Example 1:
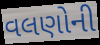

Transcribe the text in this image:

વલણોની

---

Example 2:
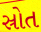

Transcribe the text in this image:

સ્રોત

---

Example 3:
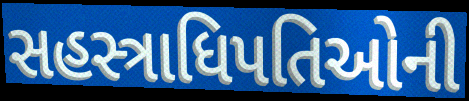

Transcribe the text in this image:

સહસ્ત્રાધિપતિઓની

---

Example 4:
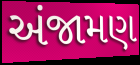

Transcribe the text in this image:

અંજામણ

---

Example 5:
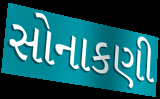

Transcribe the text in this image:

સોનાકણી